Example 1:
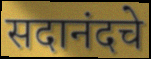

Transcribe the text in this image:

सदानंदचे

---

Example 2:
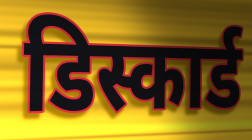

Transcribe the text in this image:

डिस्कार्ड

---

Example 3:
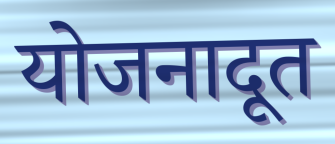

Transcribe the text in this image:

योजनादूत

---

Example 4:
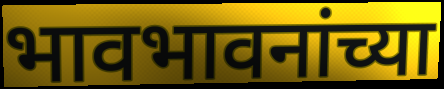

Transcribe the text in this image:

भावभावनांच्या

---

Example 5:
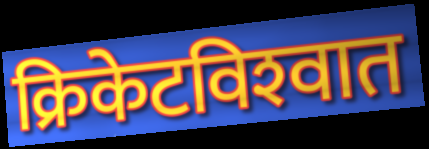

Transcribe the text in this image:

क्रिकेटविश्‍वात